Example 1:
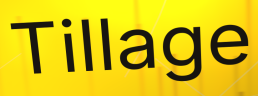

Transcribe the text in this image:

Tillage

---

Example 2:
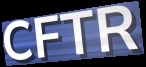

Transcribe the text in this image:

CFTR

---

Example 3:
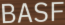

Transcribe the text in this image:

BASF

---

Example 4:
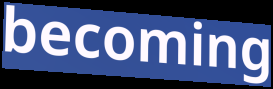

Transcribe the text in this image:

becoming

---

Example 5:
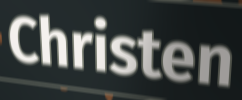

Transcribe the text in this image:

Christen